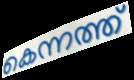
കെന്നത്ത്